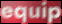
equip